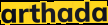
arthada